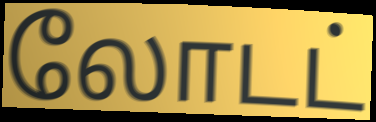
லோடட்